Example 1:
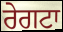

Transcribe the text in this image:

ਰੇਗਟਾ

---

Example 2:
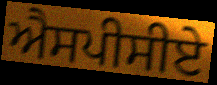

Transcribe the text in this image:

ਐਸਪੀਸੀਏ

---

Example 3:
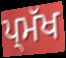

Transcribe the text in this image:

ਪ੍ਮੱਖ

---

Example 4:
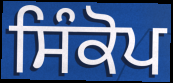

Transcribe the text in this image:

ਸਿੰਕੋਪ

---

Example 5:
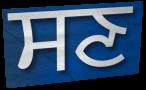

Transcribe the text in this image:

ਸਣ